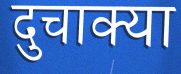
दुचाक्या